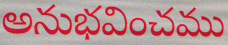
అనుభవించము